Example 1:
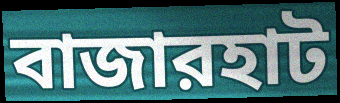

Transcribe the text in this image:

বাজারহাট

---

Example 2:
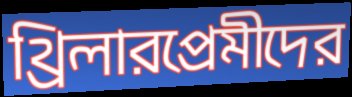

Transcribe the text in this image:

থ্রিলারপ্রেমীদের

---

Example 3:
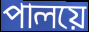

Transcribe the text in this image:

পালয়ে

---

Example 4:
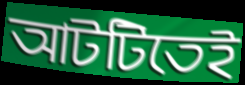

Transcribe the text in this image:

আটটিতেই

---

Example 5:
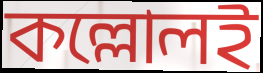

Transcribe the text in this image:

কল্লোলই